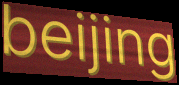
beijing